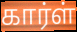
கார்ள்